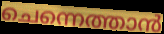
ചെന്നെത്താൻ